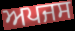
ਅਪਜਸ